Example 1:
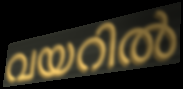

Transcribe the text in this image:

വയറിൽ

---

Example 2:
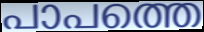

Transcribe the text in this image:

പാപത്തെ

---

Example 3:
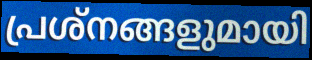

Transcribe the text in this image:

പ്രശ്നങ്ങളുമായി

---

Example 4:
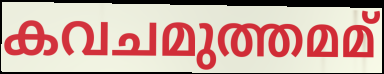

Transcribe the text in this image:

കവചമുത്തമമ്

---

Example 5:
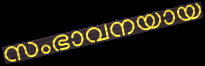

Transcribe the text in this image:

സംഭാവനയായ